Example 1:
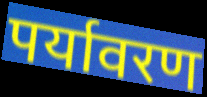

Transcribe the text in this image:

पर्यावरण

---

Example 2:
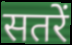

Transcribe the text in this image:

सतरें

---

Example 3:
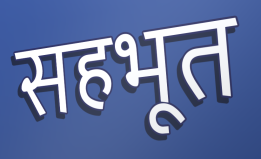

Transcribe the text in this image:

सहभूत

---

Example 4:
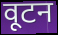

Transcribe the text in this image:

वूटन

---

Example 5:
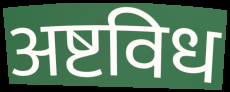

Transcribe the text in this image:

अष्टविध